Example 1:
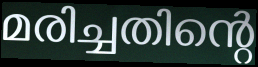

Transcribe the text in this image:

മരിച്ചതിന്റെ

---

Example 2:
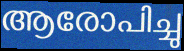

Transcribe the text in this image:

ആരോപിച്ചു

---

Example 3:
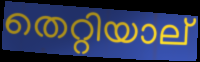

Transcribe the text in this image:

തെറ്റിയാല്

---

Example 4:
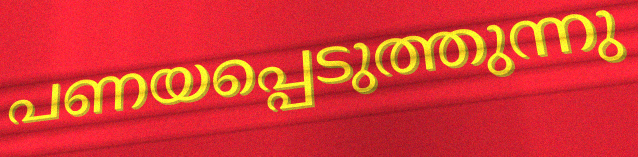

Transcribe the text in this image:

പണയപ്പെടുത്തുന്നു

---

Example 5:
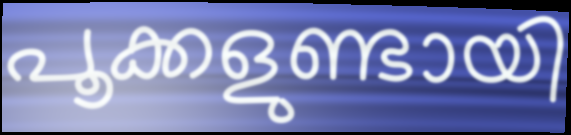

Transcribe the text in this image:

പൂക്കളുണ്ടായി